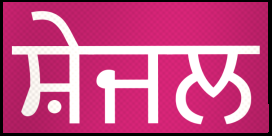
ਸ਼ੇਜਲ